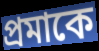
প্রমাকে